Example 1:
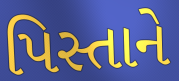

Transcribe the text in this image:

પિસ્તાને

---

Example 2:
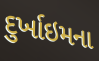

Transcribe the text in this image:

દુર્ખાઇમના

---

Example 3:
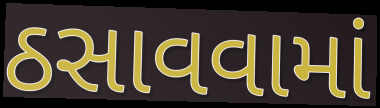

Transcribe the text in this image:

ઠસાવવામાં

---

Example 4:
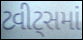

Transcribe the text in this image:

ટ્વીટ્સમાં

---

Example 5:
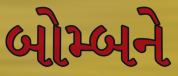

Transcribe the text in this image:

બોમ્બને